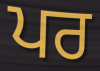
ਪਰ